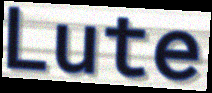
Lute